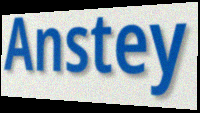
Anstey